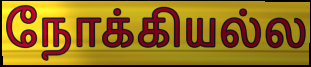
நோக்கியல்ல